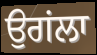
ਉਗਂਲਾ